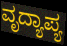
ವೃದ್ಯಾಪ್ಯ